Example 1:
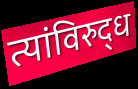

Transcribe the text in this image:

त्यांविरुद्ध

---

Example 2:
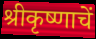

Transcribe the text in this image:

श्रीकृष्णाचें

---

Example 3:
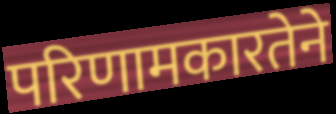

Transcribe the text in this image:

परिणामकारतेने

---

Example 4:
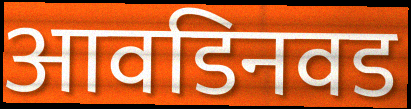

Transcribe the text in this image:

आवडिनवड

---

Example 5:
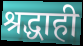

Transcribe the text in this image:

श्रद्धाही